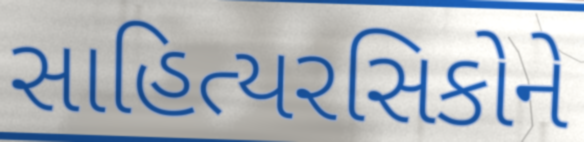
સાહિત્યરસિકોને